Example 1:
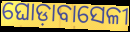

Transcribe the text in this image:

ଘୋଡ଼ାବାସେଳୀ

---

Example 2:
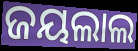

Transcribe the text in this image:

ଜୟଲାଲ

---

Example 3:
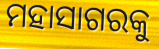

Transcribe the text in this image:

ମହାସାଗରକୁ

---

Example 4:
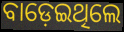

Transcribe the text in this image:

ବାଡ଼େଇଥିଲେ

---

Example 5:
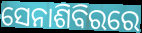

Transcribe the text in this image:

ସେନାଶିବିରରେ